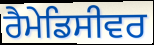
ਰੈਮੇਡਿਸੀਵਰ